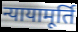
न्यायामूर्ति